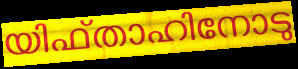
യിഫ്താഹിനോടു